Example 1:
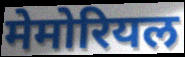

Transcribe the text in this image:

मेमोरियल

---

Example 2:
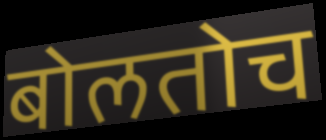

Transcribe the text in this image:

बोलतोच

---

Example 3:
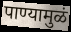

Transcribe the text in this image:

पाण्यामुळं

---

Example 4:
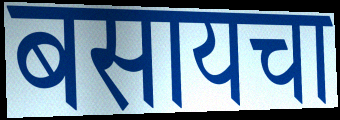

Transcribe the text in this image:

बसायचा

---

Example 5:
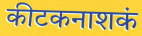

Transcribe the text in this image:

कीटकनाशकं